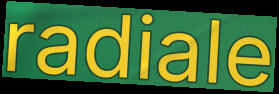
radiale